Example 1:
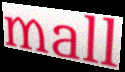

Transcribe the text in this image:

mall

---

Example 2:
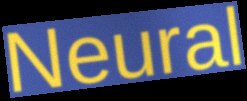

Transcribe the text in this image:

Neural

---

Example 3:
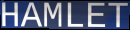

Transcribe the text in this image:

HAMLET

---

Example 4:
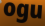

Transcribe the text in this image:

ogu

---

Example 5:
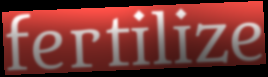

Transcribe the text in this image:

fertilize